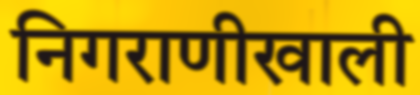
निगराणीखाली